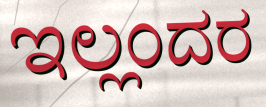
ಇಲ್ಲಂದರ